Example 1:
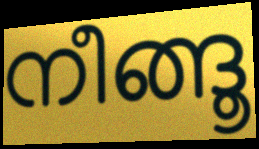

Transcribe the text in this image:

നീങ്ങൂ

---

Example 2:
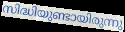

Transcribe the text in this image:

സിദ്ധിയുണ്ടായിരുന്നു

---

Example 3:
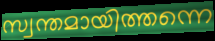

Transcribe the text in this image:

സ്വന്തമായിത്തന്നെ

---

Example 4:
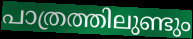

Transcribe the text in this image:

പാത്രത്തിലുണ്ടും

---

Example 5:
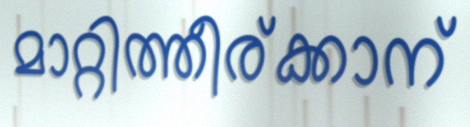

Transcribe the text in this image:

മാറ്റിത്തീര്ക്കാന്